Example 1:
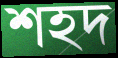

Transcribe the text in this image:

শহদ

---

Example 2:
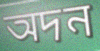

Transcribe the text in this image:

অদন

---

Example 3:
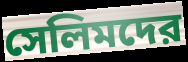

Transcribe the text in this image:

সেলিমদের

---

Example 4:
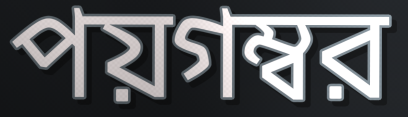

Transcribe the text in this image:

পয়গম্বর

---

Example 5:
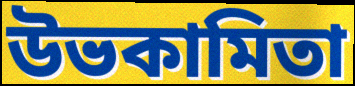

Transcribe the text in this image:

উভকামিতা